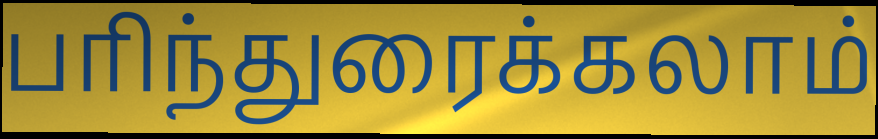
பரிந்துரைக்கலாம்